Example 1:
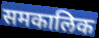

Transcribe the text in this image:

समकालिक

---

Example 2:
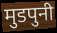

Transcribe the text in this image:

मुडपुनी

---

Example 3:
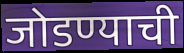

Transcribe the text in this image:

जोडण्याची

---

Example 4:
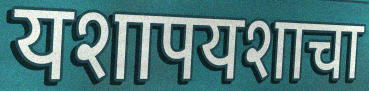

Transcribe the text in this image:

यशापयशाचा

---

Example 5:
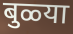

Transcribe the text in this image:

बुळ्या